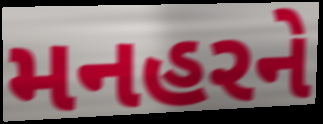
મનહરને